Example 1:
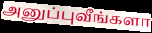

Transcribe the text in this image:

அனுப்புவீங்களா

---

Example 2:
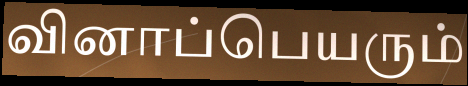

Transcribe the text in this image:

வினாப்பெயரும்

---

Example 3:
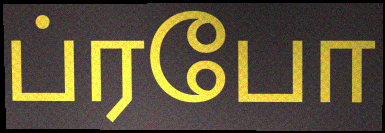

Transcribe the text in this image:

ப்ரபோ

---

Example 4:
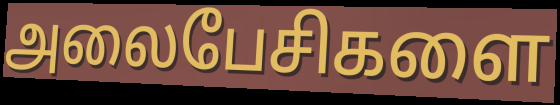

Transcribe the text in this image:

அலைபேசிகளை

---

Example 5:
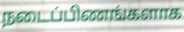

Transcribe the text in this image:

நடைப்பிணங்களாக